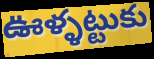
ఊళ్ళట్టుకు